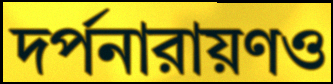
দর্পনারায়ণও